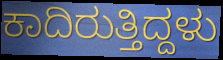
ಕಾದಿರುತ್ತಿದ್ದಳು